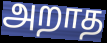
அறாத